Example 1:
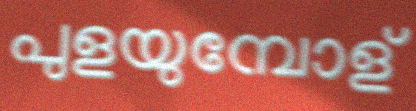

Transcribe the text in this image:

പുളയുമ്പോള്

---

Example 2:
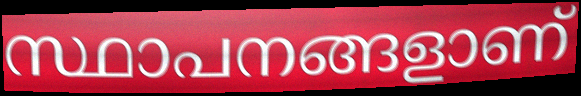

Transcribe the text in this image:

സ്ഥാപനങ്ങളാണ്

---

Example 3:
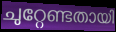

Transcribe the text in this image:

ചുറ്റേണ്ടതായി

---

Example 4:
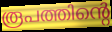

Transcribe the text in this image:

രൂപത്തിന്റെ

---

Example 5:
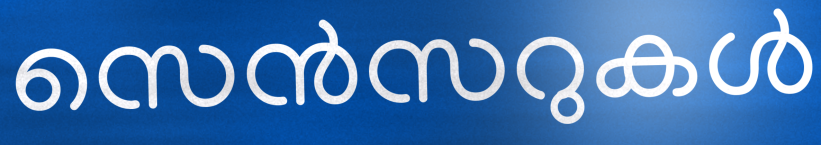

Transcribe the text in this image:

സെൻസറുകൾ